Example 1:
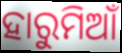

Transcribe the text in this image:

ହାରୁମିଆଁ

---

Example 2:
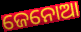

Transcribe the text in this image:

ଜେନୋଆ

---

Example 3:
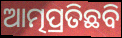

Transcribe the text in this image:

ଆତ୍ମପ୍ରତିଛବି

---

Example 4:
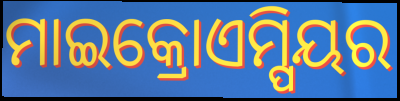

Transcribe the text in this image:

ମାଇକ୍ରୋଏମ୍ପିୟର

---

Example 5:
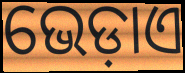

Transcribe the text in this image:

ଭେଡ଼ାଏ